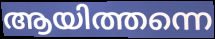
ആയിത്തന്നെ